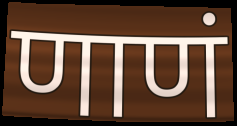
णाणं